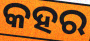
କହର